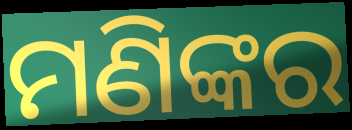
ମଣିଙ୍କର